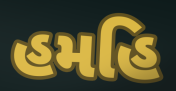
હમહિ